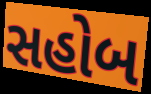
સહોબ